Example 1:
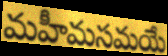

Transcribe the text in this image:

మహీమసమయే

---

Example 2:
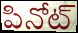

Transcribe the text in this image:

పినోట్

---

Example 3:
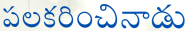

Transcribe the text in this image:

పలకరించినాడు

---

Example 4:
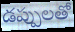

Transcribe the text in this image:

డప్పులతో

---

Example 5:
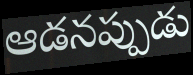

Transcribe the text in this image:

ఆడనప్పుడు